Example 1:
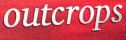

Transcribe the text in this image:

outcrops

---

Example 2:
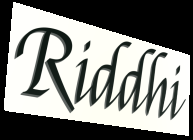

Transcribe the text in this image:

Riddhi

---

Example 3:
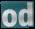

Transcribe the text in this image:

od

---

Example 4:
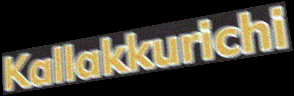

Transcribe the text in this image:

Kallakkurichi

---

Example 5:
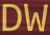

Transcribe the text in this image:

DW